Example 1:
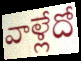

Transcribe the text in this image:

వాళ్లేదో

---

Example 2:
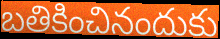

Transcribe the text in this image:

బతికించినందుకు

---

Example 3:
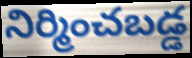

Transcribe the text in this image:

నిర్మించబడ్డ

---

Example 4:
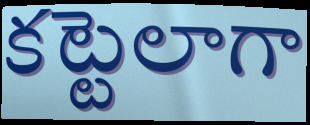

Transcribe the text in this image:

కట్టెలాగా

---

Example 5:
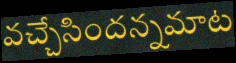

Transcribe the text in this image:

వచ్చేసిందన్నమాట